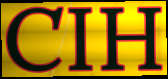
CIH